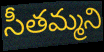
సీతమ్మని